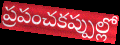
ప్రపంచకప్పుల్లో